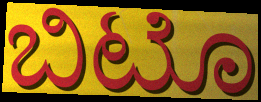
ಬಿಟೊ